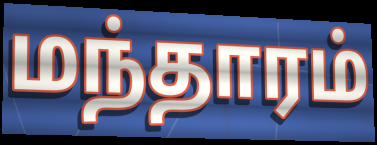
மந்தாரம்